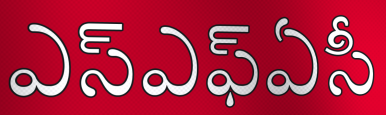
ఎస్ఎఫ్ఏసీ